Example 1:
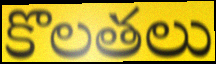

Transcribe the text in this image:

కొలతలు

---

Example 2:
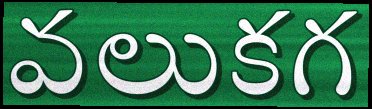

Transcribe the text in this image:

వలుకగ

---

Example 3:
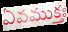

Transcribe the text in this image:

ఏవముక్తః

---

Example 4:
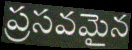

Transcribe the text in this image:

ప్రసవమైన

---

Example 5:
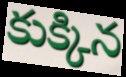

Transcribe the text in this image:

కుక్కిన